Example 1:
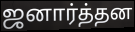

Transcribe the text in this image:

ஜனார்த்தன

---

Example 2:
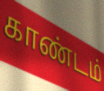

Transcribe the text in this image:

காண்டம்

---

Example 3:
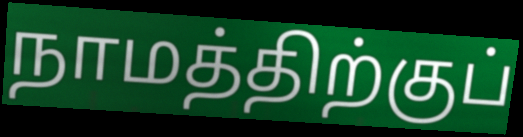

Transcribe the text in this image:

நாமத்திற்குப்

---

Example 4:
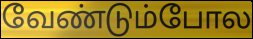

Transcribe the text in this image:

வேண்டும்போல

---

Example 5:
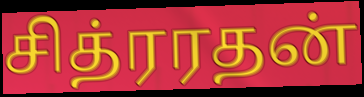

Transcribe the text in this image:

சித்ரரதன்